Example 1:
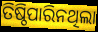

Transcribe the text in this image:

ତିଷ୍ଠିପାରିନଥିଲା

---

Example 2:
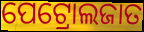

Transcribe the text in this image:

ପେଟ୍ରୋଲଜାତ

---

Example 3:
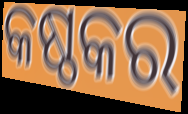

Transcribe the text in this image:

କଷ୍ଠକର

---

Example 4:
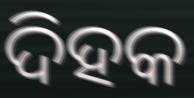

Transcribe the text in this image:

ଦିହକ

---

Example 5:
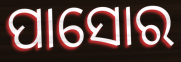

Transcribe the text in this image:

ପାସୋର